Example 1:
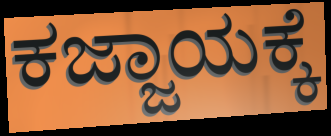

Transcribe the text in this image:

ಕಜ್ಜಾಯಕ್ಕೆ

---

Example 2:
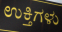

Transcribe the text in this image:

ಉಕ್ತಿಗಳು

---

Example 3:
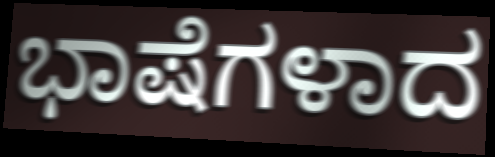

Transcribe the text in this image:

ಭಾಷೆಗಳಾದ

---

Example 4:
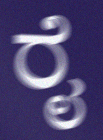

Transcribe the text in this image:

ರೈ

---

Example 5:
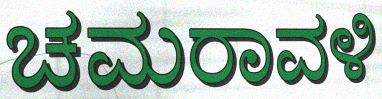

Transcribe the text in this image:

ಚಮರಾವಳಿ